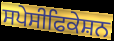
ਸਪੇਸੀਫਿਕੇਸ਼ਨ